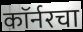
कॉर्नरचा